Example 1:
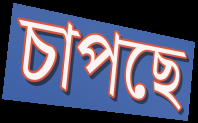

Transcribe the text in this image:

চাপছে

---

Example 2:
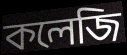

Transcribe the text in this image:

কলেজি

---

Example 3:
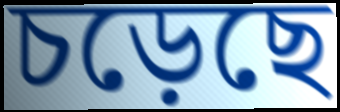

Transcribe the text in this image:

চড়েছে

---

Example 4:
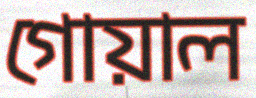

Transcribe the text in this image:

গোয়াল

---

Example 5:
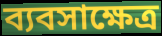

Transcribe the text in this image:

ব্যবসাক্ষেত্র